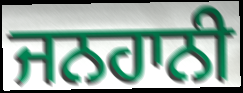
ਜਨਹਾਨੀ